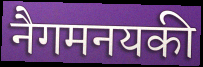
नैगमनयकी